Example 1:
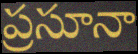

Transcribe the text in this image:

ప్రసూనా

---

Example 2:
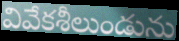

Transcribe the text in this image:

వివేకశీలుండును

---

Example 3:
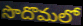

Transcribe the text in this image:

సొదొమలో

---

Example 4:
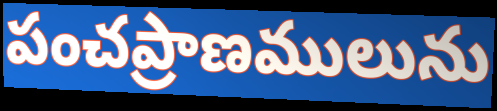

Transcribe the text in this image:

పంచప్రాణములును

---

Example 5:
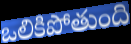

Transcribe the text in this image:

ఒలికిపోతుంది